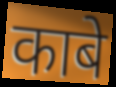
काबे